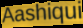
Aashiqui